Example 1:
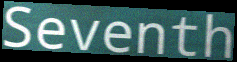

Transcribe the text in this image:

Seventh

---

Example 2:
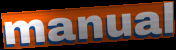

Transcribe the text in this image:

manual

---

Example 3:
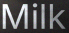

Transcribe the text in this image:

Milk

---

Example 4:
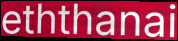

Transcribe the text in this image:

eththanai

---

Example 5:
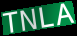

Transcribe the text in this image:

TNLA